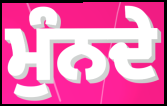
ਮੁੰਨਦੇ